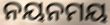
ନୟନମୟ